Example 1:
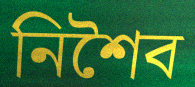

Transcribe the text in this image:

নিশৈব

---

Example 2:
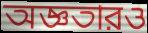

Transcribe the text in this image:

অজ্ঞতারও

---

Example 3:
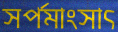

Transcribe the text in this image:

সর্পমাংসাৎ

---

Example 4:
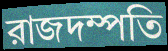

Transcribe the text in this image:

রাজদম্পতি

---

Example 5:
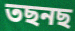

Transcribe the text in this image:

তছনছ